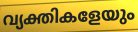
വ്യക്തികളേയും